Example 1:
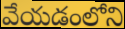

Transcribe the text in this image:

వేయడంలోని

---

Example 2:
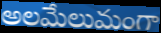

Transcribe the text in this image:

అలమేలుమంగా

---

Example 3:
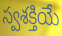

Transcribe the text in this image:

స్వశక్తియే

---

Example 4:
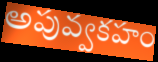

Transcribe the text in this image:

అపువ్వకహం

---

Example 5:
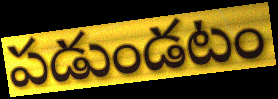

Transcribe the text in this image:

పడుండటం